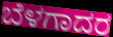
ಬೆಳಗಾದರ